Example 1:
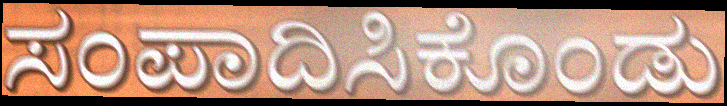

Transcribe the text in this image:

ಸಂಪಾದಿಸಿಕೊಂಡು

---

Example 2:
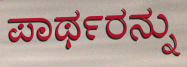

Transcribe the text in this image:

ಪಾರ್ಥರನ್ನು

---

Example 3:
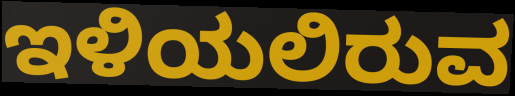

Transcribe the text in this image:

ಇಳಿಯಲಿರುವ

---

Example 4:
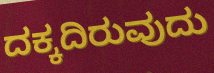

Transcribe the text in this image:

ದಕ್ಕದಿರುವುದು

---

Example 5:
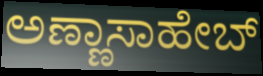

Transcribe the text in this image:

ಅಣ್ಣಾಸಾಹೇಬ್